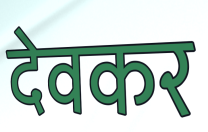
देवकर